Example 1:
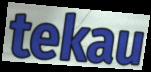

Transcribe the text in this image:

tekau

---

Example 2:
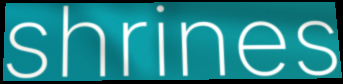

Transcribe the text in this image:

shrines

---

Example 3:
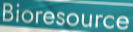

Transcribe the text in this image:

Bioresource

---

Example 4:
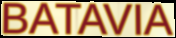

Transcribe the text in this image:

BATAVIA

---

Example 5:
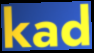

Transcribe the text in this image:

kad